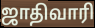
ஜாதிவாரி